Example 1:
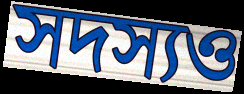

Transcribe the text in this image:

সদস্যও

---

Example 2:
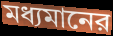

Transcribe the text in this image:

মধ্যমানের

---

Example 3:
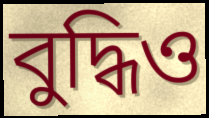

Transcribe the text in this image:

বুদ্ধিও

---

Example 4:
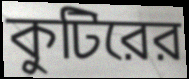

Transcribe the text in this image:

কুটিরের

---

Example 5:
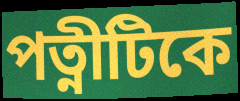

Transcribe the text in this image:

পত্নীটিকে